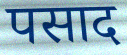
पसाद